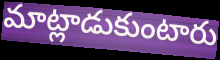
మాట్లాడుకుంటారు